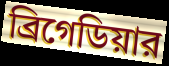
ব্রিগেডিয়ার